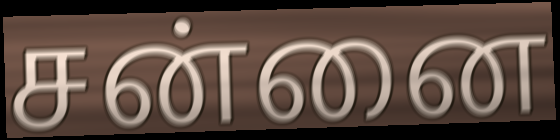
சன்னை